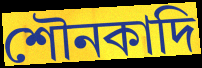
শৌনকাদি